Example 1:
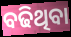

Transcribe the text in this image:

ବଢିଥିବା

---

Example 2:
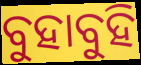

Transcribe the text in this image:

ବୁହାବୁହି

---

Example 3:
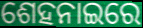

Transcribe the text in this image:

ଶେହନାଇରେ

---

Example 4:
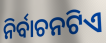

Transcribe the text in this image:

ନିର୍ବାଚନଟିଏ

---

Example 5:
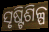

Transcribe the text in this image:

ସୃଷ୍ଟିଶିଳ୍ପ